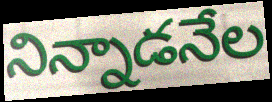
నిన్నాడనేల